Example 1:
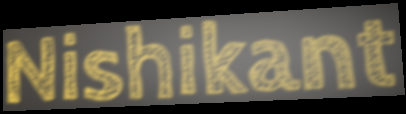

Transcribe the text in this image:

Nishikant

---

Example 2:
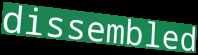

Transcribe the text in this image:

dissembled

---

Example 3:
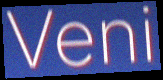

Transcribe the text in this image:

Veni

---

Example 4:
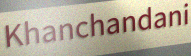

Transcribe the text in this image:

Khanchandani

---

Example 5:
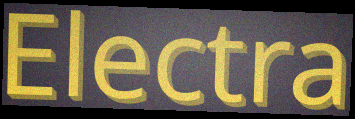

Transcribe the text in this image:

Electra